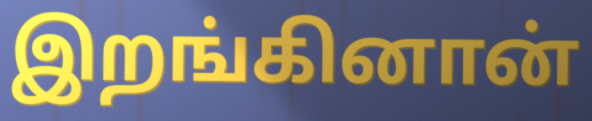
இறங்கினான்